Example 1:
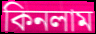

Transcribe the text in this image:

কিনলাম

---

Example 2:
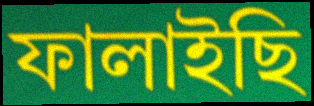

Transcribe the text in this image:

ফালাইছি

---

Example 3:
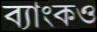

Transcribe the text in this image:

ব্যাংকও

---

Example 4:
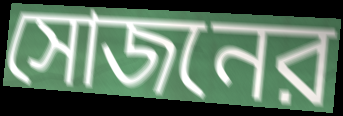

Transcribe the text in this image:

সোজনের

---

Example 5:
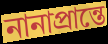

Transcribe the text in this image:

নানাপ্রান্তে